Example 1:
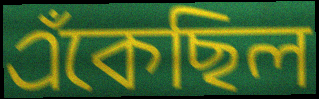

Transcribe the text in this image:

এঁকেছিল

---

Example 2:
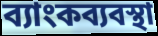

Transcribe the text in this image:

ব্যাংকব্যবস্থা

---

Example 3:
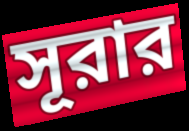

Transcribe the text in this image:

সূরার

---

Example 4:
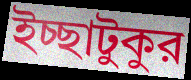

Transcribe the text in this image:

ইচ্ছাটুকুর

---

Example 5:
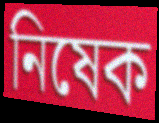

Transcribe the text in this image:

নিষেক